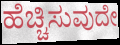
ಹೆಚ್ಚಿಸುವುದೇ